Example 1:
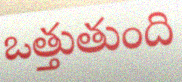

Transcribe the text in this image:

ఒత్తుతుంది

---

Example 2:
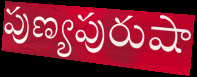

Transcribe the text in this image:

పుణ్యపురుషా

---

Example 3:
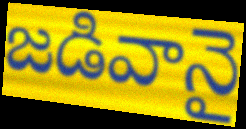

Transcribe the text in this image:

జడివానై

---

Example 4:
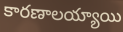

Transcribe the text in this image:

కారణాలయ్యాయి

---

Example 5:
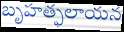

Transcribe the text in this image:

బృహత్ఫలాయన